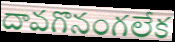
దావగొనంగలేక